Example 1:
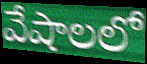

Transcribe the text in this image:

వేషాలలో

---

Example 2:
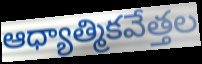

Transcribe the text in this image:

ఆధ్యాత్మికవేత్తల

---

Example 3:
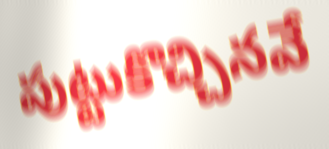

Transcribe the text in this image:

పుట్టుకొచ్చినవే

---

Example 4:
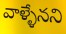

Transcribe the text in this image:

వాళ్ళేనని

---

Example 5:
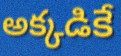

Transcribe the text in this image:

అక్కడికే